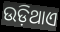
ଉଡ଼ିଥାଏ